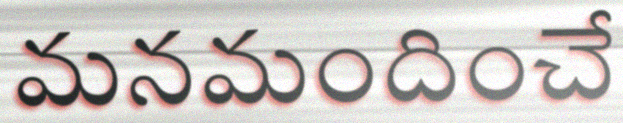
మనమందించే